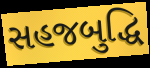
સહજબુદ્ધિ